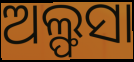
ଅଲ୍ଫସା